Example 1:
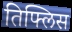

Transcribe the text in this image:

तिफ्लिस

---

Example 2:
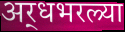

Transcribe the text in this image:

अर्धभरल्या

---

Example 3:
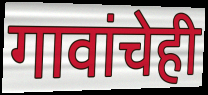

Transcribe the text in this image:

गावांचेही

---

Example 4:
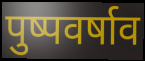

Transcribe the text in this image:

पुष्पवर्षाव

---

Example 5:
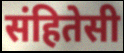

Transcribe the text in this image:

संहितेसी